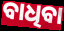
ବାଧିବା